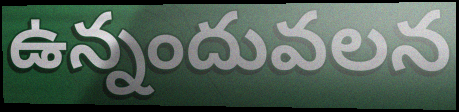
ఉన్నందువలన